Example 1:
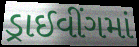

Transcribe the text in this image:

ડ્રાઈવીંગમાં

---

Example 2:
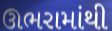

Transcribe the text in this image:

ઊભરામાંથી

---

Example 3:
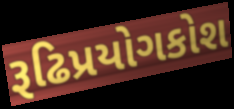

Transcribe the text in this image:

રૂઢિપ્રયોગકોશ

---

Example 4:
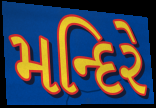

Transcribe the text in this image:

મન્દિરે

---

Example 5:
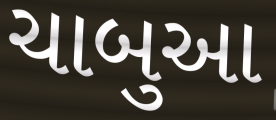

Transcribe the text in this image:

ચાબુઆ